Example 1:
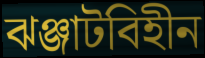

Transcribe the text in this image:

ঝঞ্জাটবিহীন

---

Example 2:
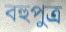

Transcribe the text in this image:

বহুপুত্র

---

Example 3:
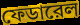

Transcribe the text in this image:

ফেডারেল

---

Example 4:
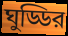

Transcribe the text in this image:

ঘুড্ডির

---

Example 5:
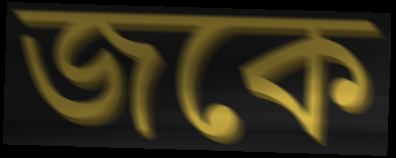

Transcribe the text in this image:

জকে